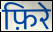
फ़िरे